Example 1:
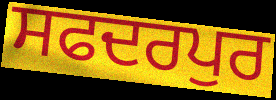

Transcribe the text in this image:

ਸਫਦਰਪੁਰ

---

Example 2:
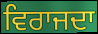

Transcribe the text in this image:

ਵਿਰਾਜਦਾ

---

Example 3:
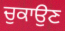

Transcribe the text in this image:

ਚੁਕਾਉਣ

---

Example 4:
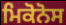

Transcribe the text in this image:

ਮਿਕੋਨੋਸ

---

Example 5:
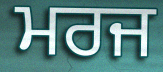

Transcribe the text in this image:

ਮਰਜ